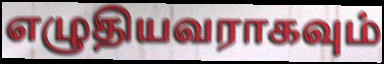
எழுதியவராகவும்